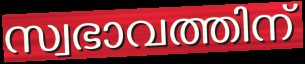
സ്വഭാവത്തിന്